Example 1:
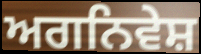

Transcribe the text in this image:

ਅਗਨਿਵੇਸ਼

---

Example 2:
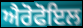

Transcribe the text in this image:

ਐਰੋਫੋਇਲ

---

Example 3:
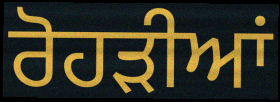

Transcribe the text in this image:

ਰੋਹੜੀਆਂ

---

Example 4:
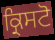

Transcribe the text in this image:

ਕ੍ਰਿਸਟੋ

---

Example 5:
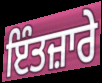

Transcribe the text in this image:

ਇੰਤਜ਼ਾਰੇ